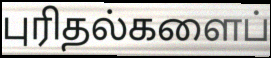
புரிதல்களைப்